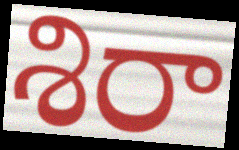
శిరా